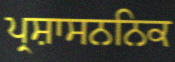
ਪ੍ਰਸ਼ਾਸਨਨਿਕ